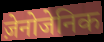
ज़ेनोजेनिक